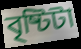
বৃষ্টিটা